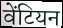
वेंटियन